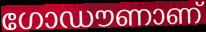
ഗോഡൗണാണ്